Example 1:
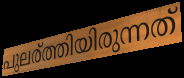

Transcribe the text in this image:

പുലര്ത്തിയിരുന്നത്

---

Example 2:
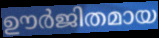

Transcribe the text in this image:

ഊർജിതമായ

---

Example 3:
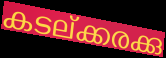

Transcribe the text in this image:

കടല്ക്കരക്കു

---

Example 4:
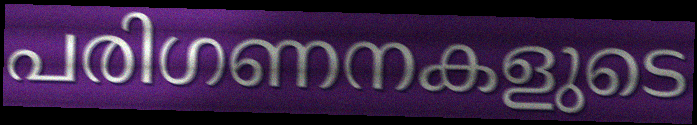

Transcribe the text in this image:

പരിഗണനകളുടെ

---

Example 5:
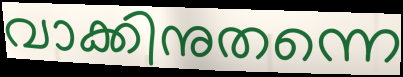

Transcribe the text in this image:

വാക്കിനുതന്നെ